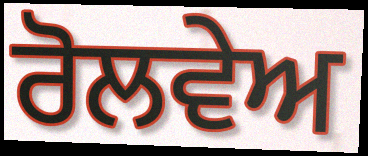
ਰੋਲਵੇਅ